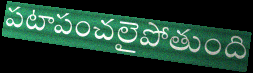
పటాపంచలైపోతుంది